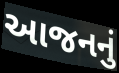
આજનનું